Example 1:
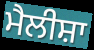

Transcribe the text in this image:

ਮੈਲੀਸ਼ਾ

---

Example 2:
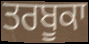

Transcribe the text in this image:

ਤਰਬੂਕਾ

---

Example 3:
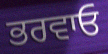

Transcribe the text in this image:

ਭਰਵਾਓ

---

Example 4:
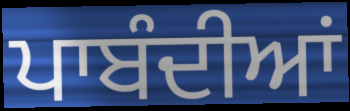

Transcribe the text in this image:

ਪਾਬੰਦੀਆਂ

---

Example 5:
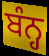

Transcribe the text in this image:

ਬੰਨ੍ਹ